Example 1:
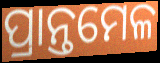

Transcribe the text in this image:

ପ୍ରାନ୍ତମେଳ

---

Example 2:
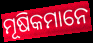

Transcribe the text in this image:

ମୂଷିକମାନେ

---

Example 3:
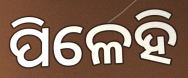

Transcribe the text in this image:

ପିଳେହି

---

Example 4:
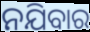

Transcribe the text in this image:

ନଯିବାର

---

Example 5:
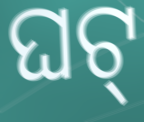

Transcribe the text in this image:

ଘଟ୍